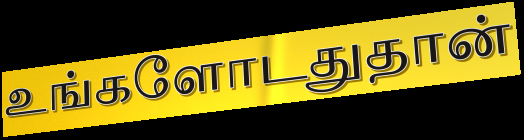
உங்களோடதுதான்